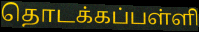
தொடக்கப்பள்ளி